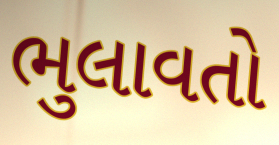
ભુલાવતો